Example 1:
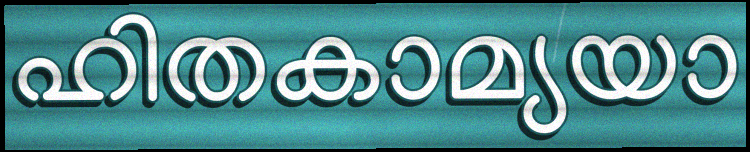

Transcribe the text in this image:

ഹിതകാമ്യയാ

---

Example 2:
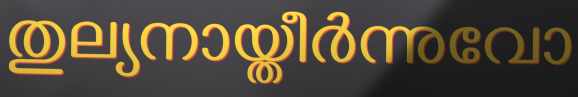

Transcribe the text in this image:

തുല്യനായ്തീർന്നുവോ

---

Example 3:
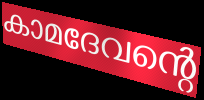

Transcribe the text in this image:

കാമദേവന്റെ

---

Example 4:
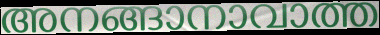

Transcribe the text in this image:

അനങ്ങാനാവാത്ത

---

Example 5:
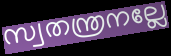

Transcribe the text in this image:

സ്വതന്ത്രനല്ലേ